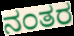
ನಂತರ